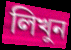
লিখুন